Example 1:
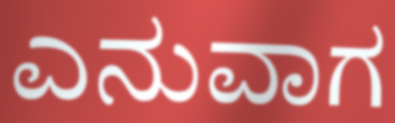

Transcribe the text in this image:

ಎನುವಾಗ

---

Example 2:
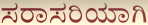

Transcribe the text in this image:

ಸರಾಸರಿಯಾಗಿ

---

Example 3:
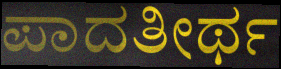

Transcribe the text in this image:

ಪಾದತೀರ್ಥ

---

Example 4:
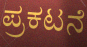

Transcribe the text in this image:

ಪ್ರಕಟನೆ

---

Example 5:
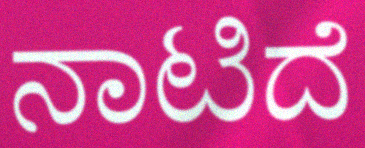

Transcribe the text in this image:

ನಾಟಿದೆ